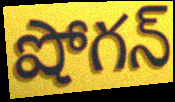
షోగన్